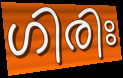
ഗിരിഃ